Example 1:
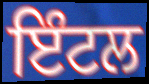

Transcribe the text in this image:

ਇੰਟਲ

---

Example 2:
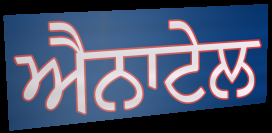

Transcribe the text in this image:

ਐਨਾਟੇਲ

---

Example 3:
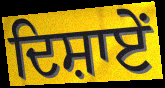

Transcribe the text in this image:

ਦਿਸ਼ਾਏਂ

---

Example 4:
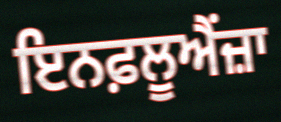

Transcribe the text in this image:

ਇਨਫ਼ਲੂਐਂਜ਼ਾ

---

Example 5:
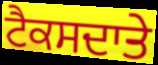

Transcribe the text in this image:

ਟੈਕਸਦਾਤੇ